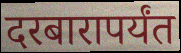
दरबारापर्यंत